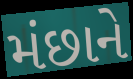
મંછાને